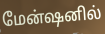
மேன்ஷனில்